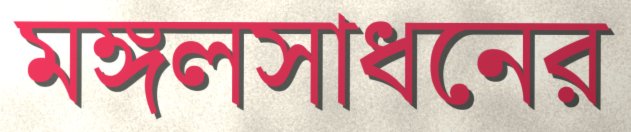
মঙ্গলসাধনের